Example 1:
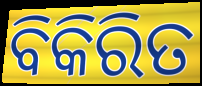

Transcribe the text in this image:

ବିକିରିତ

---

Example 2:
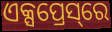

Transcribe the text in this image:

ଏକ୍ସପ୍ରେସ୍‌ରେ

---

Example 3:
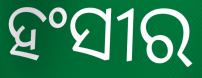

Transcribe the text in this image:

ହଂସୀର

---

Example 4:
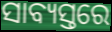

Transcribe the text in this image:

ସାବ୍ୟସ୍ତରେ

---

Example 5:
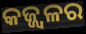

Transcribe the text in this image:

କଜ୍ଜ୍ୱଳର